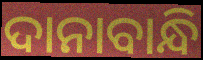
ଦାନାବାନ୍ଧି